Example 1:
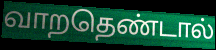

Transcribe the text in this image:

வாறதெண்டால்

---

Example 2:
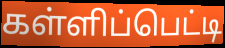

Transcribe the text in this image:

கள்ளிப்பெட்டி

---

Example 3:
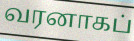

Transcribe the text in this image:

வரனாகப்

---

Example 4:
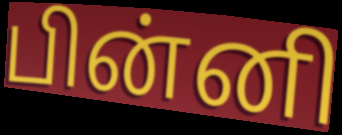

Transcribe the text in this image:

பின்னி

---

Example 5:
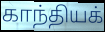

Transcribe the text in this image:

காந்தியக்